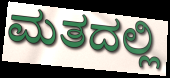
ಮತದಲ್ಲಿ